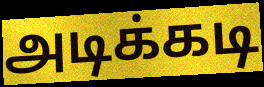
அடிக்கடி